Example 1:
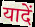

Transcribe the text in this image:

यादें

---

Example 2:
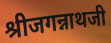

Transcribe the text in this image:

श्रीजगन्नाथजी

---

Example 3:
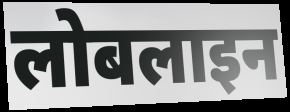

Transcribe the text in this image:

लोबलाइन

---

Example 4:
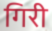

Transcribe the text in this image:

गिरी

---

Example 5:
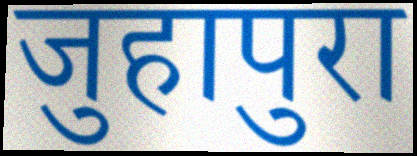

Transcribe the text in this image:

जुहापुरा